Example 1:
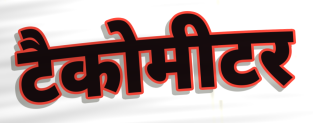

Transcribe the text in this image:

टैकोमीटर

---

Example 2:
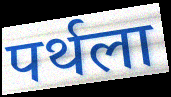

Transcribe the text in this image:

पर्थला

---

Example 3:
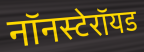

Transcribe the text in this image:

नॉनस्टेरॉयड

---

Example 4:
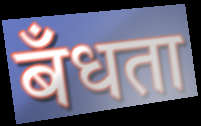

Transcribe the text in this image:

बँधता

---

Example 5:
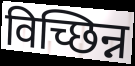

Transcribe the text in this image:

विच्छिन्न